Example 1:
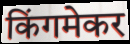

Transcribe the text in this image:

किंगमेकर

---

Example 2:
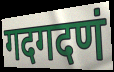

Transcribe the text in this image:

गदगदणं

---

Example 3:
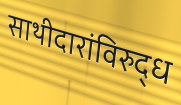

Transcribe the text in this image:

साथीदारांविरुद्ध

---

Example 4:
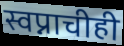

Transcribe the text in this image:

स्वप्नाचीही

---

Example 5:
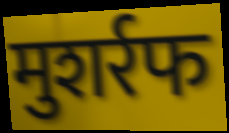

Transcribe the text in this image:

मुशर्रफ